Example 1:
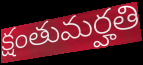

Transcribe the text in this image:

క్షంతుమర్హతి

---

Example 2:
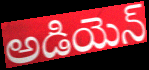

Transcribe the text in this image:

అడియెన్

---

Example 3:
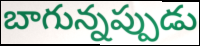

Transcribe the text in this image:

బాగున్నప్పుడు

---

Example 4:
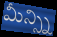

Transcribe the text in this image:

మీన్స్ని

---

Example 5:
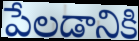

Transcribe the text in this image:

పేలడానికి